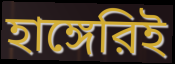
হাঙ্গেরিই